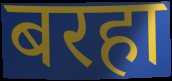
बरहा